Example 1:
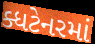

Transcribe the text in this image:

ક્ધટેનરમાં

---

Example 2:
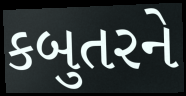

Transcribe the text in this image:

કબુતરને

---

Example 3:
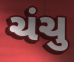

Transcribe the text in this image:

ચંચુ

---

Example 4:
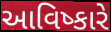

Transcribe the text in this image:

આવિષ્કારે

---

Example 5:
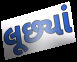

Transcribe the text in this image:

લૂછ્યાં